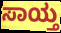
ಸಾಯ್ತ